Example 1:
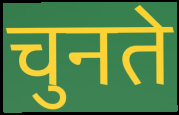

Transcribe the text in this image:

चुनते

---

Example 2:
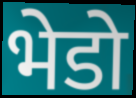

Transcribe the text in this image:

भेडो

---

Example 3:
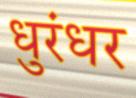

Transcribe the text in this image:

धुरंधर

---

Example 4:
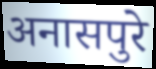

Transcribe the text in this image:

अनासपुरे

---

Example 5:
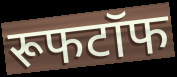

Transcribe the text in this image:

रूफटॉफ